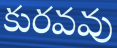
కురవవు